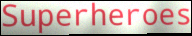
Superheroes